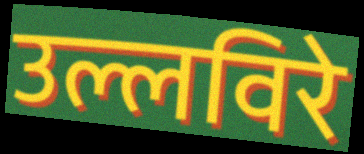
उल्लविरे